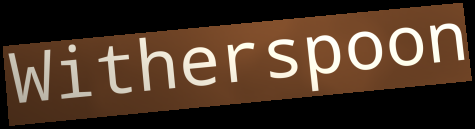
Witherspoon